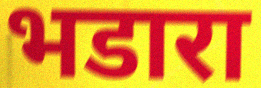
भडारा